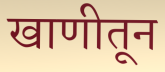
खाणीतून